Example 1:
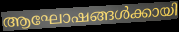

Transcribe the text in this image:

ആഘോഷങ്ങൾക്കായി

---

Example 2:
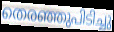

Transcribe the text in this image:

തെരഞ്ഞുപിടിച്ചു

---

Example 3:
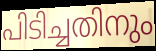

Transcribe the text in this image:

പിടിച്ചതിനും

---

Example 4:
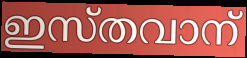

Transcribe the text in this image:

ഇസ്തവാന്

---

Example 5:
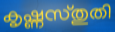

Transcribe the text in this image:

കൃഷ്ണസ്തുതി